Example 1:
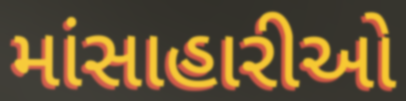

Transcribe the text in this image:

માંસાહારીઓ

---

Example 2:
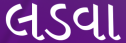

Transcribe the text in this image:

લડવા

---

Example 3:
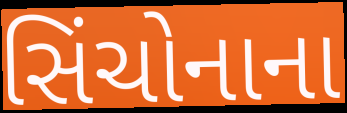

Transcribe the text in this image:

સિંચોનાના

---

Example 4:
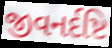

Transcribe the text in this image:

જીવનર્દષ્ટિ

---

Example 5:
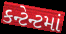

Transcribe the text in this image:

કન્ટેન્ટમાં